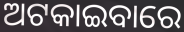
ଅଟକାଇବାରେ